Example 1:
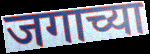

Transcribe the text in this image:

जगाच्या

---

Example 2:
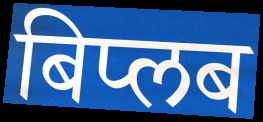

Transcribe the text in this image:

बिप्लब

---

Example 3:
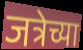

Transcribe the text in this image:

जत्रेच्या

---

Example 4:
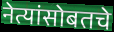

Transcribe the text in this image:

नेत्यांसोबतचे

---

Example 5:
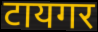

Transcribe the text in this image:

टायगर